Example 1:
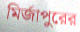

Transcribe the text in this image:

মির্জাপুরের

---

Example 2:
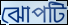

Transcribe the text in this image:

ঝোপটি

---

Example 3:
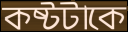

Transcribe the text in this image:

কষ্টটাকে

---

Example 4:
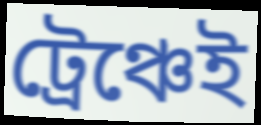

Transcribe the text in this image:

ট্রেঞ্চেই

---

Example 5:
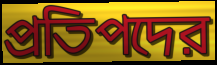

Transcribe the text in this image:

প্রতিপদের